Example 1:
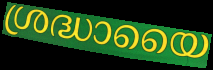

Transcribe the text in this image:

ശ്രദ്ധായൈ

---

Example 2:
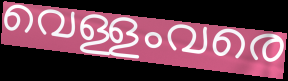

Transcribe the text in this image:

വെള്ളംവരെ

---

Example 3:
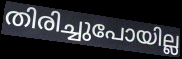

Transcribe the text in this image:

തിരിച്ചുപോയില്ല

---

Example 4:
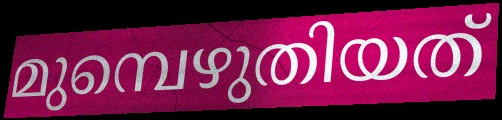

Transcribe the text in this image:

മുമ്പെഴുതിയത്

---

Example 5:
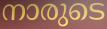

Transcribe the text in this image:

നാരുടെ